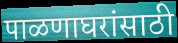
पाळणाघरांसाठी